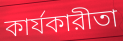
কার্যকারীতা